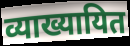
व्याख्यायित